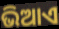
ଭିଆଏ